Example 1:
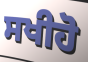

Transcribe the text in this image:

ਸਖੀਹੋ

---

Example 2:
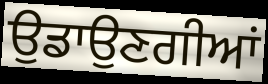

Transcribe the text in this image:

ਉਡਾਉਣਗੀਆਂ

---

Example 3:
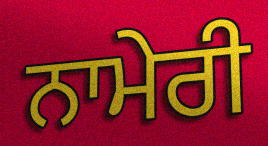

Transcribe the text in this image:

ਨਾਮੇਰੀ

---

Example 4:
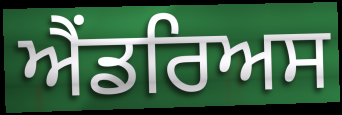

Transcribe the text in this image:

ਐਂਡਰਿਅਸ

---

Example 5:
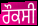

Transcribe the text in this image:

ਰੌਕਸੀ